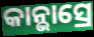
କାନ୍ଭାସ୍ରେ